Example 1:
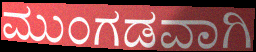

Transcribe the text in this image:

ಮುಂಗಡವಾಗಿ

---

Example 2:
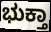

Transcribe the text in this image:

ಭುಕ್ತಾ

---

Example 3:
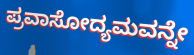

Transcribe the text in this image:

ಪ್ರವಾಸೋದ್ಯಮವನ್ನೇ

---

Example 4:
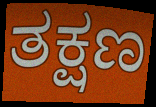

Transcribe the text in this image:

ತಕ್ಷಣ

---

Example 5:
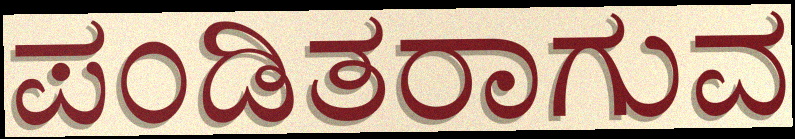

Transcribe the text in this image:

ಪಂಡಿತರಾಗುವ